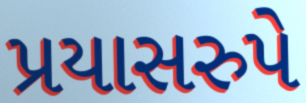
પ્રયાસરુપે